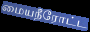
மையநீரோட்ட